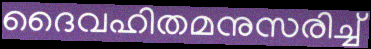
ദൈവഹിതമനുസരിച്ച്